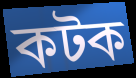
কটক